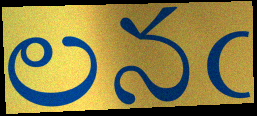
లనఁ